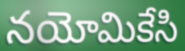
నయోమికేసి